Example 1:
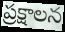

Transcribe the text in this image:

ప్రక్షాలన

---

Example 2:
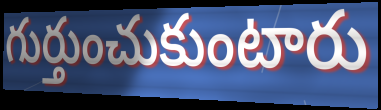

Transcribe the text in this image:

గుర్తుంచుకుంటారు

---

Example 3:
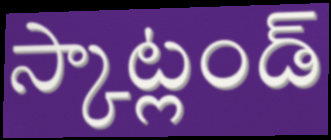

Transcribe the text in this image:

స్కాట్లండ్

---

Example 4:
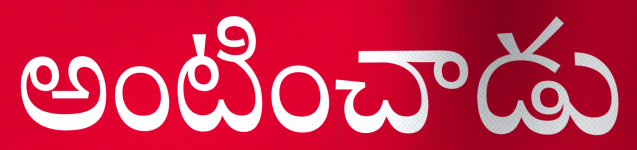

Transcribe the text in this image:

అంటించాడు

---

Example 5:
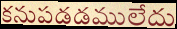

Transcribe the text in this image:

కనుపడడములేదు